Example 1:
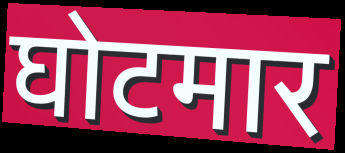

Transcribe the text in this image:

घोटमार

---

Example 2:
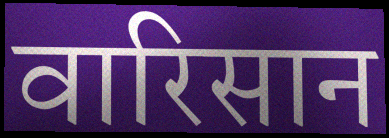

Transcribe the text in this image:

वारिसान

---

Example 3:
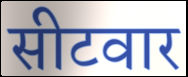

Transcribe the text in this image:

सीटवार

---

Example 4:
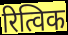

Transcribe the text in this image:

रित्विक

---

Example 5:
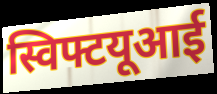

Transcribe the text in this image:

स्विफ्टयूआई